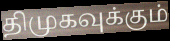
திமுகவுக்கும்